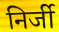
निर्जी